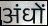
अंधों